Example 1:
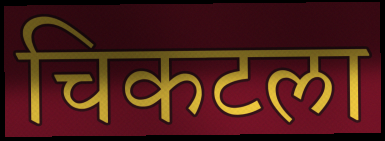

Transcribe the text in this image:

चिकटला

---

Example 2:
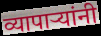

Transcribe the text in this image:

व्यापाऱ्यांनी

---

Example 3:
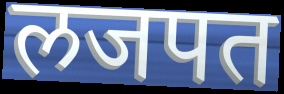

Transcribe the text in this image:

लजपत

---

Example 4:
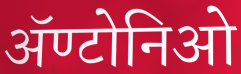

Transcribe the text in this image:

ॲण्टोनिओ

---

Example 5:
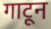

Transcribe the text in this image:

गाटून